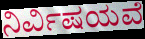
ನಿರ್ವಿಷಯವೆ